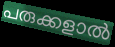
പരുക്കളാൽ